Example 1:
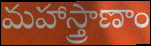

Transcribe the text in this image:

మహాస్త్రాణాం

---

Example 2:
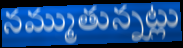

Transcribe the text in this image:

నమ్ముతున్నట్లు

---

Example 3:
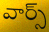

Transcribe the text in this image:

వార్స్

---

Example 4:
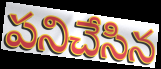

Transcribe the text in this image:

పనిచేసిన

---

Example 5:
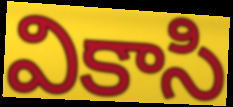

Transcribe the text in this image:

వికాసి